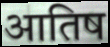
आतिष